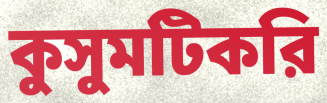
কুসুমটিকরি